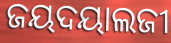
ଜୟଦୟାଲଜୀ